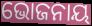
ଭୋଜନାୟ